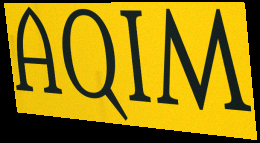
AQIM